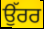
ਉੱਰਰ